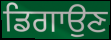
ਡਿਗਾਉਣ